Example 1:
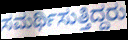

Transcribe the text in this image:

ಸಮರ್ಥಿಸುತ್ತಿದ್ದರು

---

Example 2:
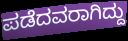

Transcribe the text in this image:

ಪಡೆದವರಾಗಿದ್ದು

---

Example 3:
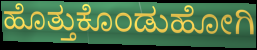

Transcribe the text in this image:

ಹೊತ್ತುಕೊಂಡುಹೋಗಿ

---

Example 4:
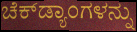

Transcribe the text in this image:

ಚೆಕ್‌ಡ್ಯಾಂಗಳನ್ನು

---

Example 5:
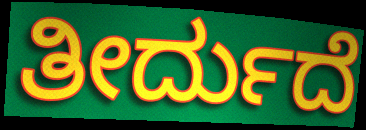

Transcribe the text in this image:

ತೀರ್ದುದೆ